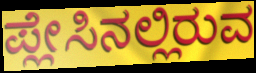
ಪ್ಲೇಸಿನಲ್ಲಿರುವ